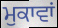
ਮੁਕਾਵਾਂ